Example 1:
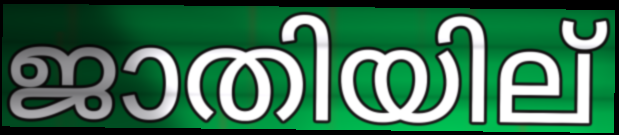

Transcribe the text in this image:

ജാതിയില്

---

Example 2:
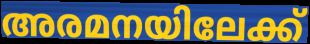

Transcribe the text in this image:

അരമനയിലേക്ക്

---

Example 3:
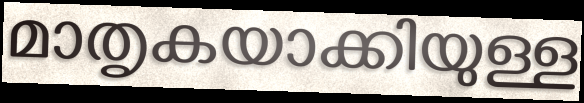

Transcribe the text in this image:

മാതൃകയാക്കിയുള്ള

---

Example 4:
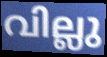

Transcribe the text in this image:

വില്ലു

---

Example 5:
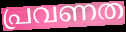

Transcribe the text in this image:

പ്രവണത